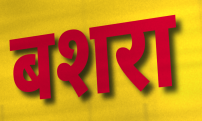
बशरा